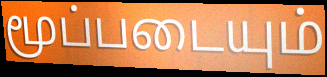
மூப்படையும்